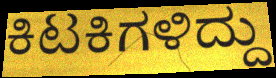
ಕಿಟಕಿಗಳಿದ್ದು